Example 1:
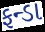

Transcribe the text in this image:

ફન્ડા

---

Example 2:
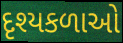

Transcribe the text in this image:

દૃશ્યકળાઓ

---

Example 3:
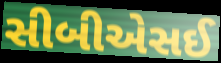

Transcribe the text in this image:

સીબીએસઈ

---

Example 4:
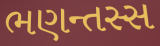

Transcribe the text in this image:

ભણન્તસ્સ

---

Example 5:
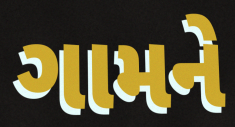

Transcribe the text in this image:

ગામને